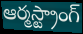
ఆర్మస్ట్రాంగ్